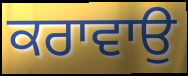
ਕਰਾਵਾਉ